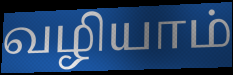
வழியாம்